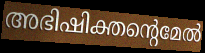
അഭിഷിക്തന്റെമേൽ